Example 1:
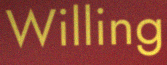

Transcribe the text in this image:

Willing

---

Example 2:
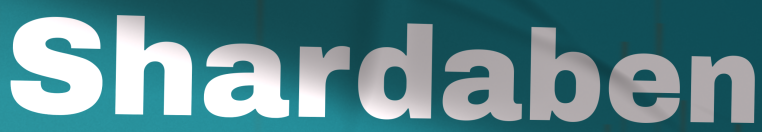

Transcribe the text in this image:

Shardaben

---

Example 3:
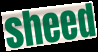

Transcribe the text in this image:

sheed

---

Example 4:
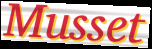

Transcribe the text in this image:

Musset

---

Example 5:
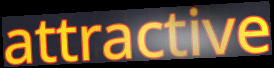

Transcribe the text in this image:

attractive